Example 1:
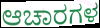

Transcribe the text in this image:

ಆಚಾರಗಳ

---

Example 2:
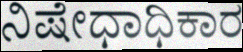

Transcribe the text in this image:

ನಿಷೇಧಾಧಿಕಾರ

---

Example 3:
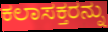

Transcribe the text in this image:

ಕಲಾಸಕ್ತರನ್ನು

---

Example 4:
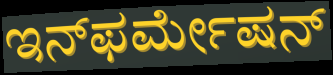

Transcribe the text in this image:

ಇನ್‌ಫರ್ಮೇಷನ್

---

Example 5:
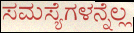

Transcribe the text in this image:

ಸಮಸ್ಯೆಗಳನ್ನೆಲ್ಲ